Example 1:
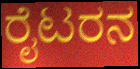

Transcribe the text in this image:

ರೈಟರನ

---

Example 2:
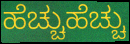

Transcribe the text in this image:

ಹೆಚ್ಚುಹೆಚ್ಚು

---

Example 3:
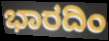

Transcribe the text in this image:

ಭಾರದಿಂ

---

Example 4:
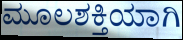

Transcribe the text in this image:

ಮೂಲಶಕ್ತಿಯಾಗಿ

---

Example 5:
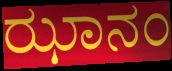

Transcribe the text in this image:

ಝಾನಂ